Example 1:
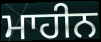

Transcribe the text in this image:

ਮਾਹੀਨ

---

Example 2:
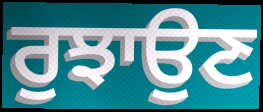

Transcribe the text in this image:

ਰੁਝਾਉਣ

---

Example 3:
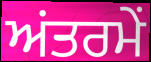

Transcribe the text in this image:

ਅਂਤਰਮੇਂ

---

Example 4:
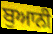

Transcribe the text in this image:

ਬੁਆਨੀ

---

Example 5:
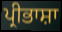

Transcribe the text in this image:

ਪ੍ਰੀਭਾਸ਼ਾ